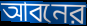
আবনের